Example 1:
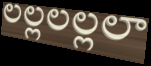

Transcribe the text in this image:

లల్లలల్లలా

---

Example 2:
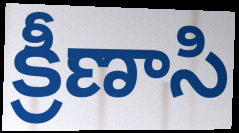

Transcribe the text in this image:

క్రీణాసి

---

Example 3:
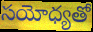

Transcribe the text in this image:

సయోధ్యతో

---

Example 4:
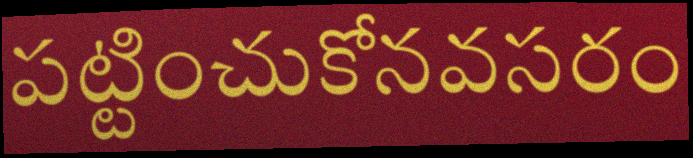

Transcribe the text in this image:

పట్టించుకోనవసరం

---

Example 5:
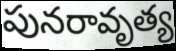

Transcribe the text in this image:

పునరావృత్య